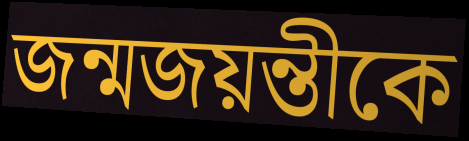
জন্মজয়ন্তীকে